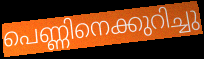
പെണ്ണിനെക്കുറിച്ചു